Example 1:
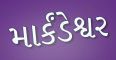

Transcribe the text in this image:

માર્કંડેશ્વર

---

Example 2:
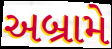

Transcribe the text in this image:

અબ્રામે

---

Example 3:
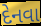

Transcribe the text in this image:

દેનવા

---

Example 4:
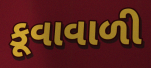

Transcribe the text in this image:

કૂવાવાળી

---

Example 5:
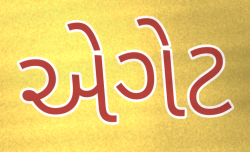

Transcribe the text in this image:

એગેટ